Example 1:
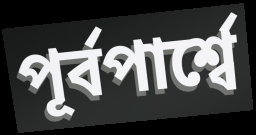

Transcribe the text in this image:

পূর্বপার্শ্বে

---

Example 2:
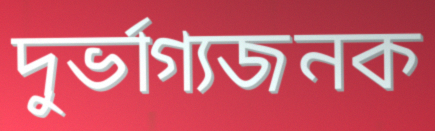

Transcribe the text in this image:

দুর্ভাগ্যজনক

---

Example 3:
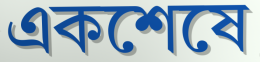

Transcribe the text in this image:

একশেষে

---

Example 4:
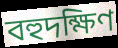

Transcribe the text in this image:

বহুদক্ষিণ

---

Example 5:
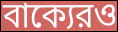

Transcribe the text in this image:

বাক্যেরও